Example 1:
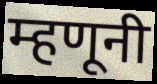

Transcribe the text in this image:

म्हणूनी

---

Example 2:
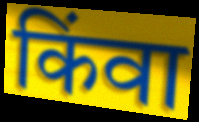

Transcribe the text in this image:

किंवा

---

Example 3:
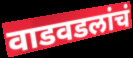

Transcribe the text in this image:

वाडवडलांचं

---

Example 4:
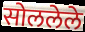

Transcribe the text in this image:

सोललेले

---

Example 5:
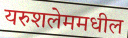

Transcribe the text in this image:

यरुशलेममधील